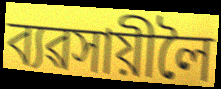
ব্যৱসায়ীলৈ